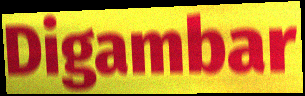
Digambar